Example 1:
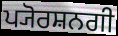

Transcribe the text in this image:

ਪ੍ਯੋਰਸ਼ਨਗੀ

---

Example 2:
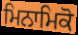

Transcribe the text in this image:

ਮਿਨਾਮਿਕੋ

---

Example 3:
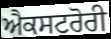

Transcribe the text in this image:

ਐਕਸਟਰੋਰੀ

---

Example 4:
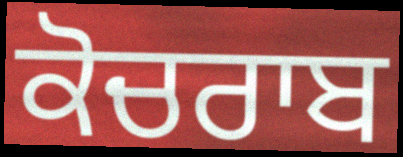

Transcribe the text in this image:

ਕੋਚਰਾਬ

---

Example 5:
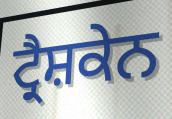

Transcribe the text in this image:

ਟ੍ਰੈਸ਼ਕੇਨ